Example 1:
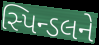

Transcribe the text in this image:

સ્પિન્ડલને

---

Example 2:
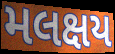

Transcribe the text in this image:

મલક્ષય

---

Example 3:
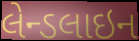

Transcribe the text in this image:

લેન્ડલાઇન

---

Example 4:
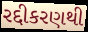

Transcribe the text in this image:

રદ્દીકરણથી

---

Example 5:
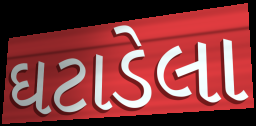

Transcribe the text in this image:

ઘટાડેલા